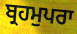
ਬ੍ਰਹਮੁਪਰਾ